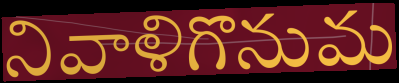
నివాళిగొనుమ